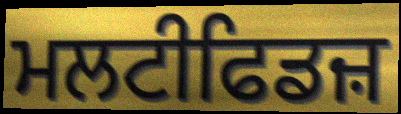
ਮਲਟੀਫਿਡਜ਼